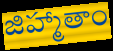
జిహ్మాతాం